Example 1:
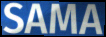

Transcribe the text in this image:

SAMA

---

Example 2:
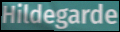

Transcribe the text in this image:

Hildegarde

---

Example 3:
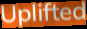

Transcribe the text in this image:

Uplifted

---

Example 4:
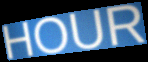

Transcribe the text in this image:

HOUR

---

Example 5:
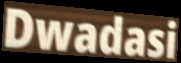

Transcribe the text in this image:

Dwadasi